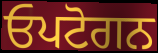
ਓਪਟੋਗਨ